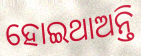
ହୋଇଥାଅନ୍ତି